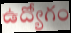
ఉద్యోగం